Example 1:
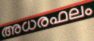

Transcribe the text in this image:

അധരഫലം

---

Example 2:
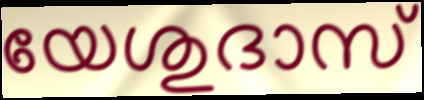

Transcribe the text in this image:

യേശുദാസ്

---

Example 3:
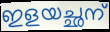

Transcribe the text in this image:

ഇളയച്ഛന്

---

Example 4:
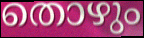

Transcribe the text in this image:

തൊഴും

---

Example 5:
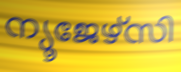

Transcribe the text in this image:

ന്യൂജേഴ്സി